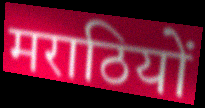
मराठियों